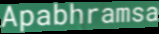
Apabhramsa